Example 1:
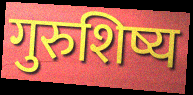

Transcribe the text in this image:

गुरुशिष्य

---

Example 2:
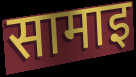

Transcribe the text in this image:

सामाइ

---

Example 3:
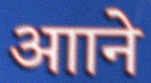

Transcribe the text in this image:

आाने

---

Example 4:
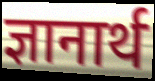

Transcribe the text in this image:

ज्ञानार्थ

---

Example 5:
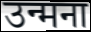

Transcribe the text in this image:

उन्मना